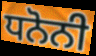
ਧਨੋਨੀ